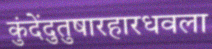
कुंदेंदुतुषारहारधवला